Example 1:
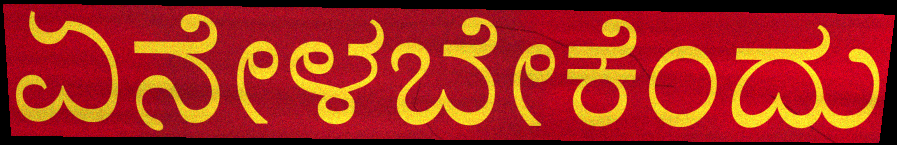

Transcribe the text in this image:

ಏನೇಳಬೇಕೆಂದು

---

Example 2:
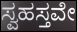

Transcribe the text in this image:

ಸ್ವಹಸ್ತವೇ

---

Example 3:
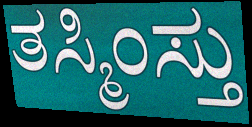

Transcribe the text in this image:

ತಸ್ಮಿಂಸ್ತು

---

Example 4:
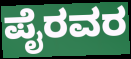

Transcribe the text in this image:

ಪೈರವರ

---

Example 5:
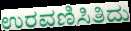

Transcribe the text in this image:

ಉರವಣಿಸಿತಿದು